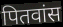
पितवांस